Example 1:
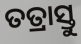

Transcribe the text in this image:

ତତ୍ରାସ୍ତୁ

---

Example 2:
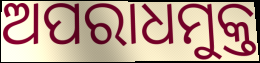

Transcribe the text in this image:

ଅପରାଧମୁକ୍ତ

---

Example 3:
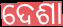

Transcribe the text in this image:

ଦେଶା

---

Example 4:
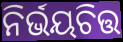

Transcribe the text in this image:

ନିର୍ଭୟଚିତ୍ତ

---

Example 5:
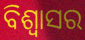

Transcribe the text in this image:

ବିଶ୍ବାସର